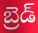
బ్రెడ్